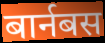
बार्नबस